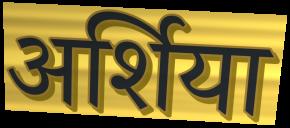
अर्शिया